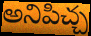
అనిపిచ్చ